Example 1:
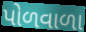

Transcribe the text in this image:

પોળવાળા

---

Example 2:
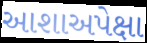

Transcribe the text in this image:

આશાઅપેક્ષા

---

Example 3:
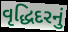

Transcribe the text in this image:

વૃદ્ધિદરનું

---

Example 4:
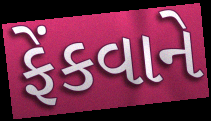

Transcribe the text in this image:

ફેંકવાને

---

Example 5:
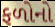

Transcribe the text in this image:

ફળોનો